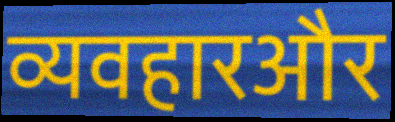
व्यवहारऔर